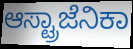
ಆಸ್ಟ್ರಾಜೆನಿಕಾ